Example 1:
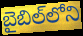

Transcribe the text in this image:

బైబిల్‌లోని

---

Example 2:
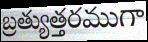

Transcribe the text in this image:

బ్రత్యుత్తరముగా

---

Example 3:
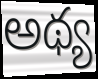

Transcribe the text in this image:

అథ్య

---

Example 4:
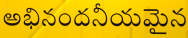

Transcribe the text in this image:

అభినందనీయమైన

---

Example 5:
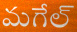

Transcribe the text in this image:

మగేల్